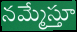
నమ్మేస్తూ